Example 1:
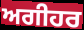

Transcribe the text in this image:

ਅਗੀਹਰ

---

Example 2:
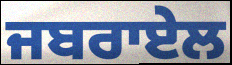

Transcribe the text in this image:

ਜਬਰਾਏਲ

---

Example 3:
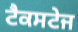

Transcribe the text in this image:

ਟੈਕਸਟੇਜ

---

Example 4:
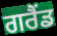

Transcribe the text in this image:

ਗਰੈਂਡ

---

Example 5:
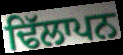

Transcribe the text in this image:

ਢਿੱਲਾਪਨ